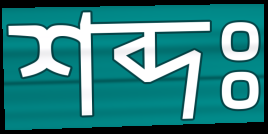
শব্দঃ